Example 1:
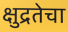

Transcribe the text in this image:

क्षुद्रतेचा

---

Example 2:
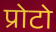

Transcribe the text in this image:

प्रोटो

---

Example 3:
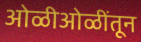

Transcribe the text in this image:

ओळीओळींतून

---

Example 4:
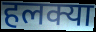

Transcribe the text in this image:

हलक्या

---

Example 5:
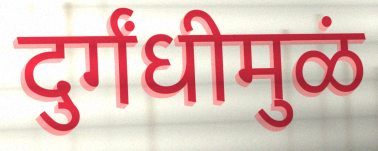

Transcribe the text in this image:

दुर्गंधीमुळं